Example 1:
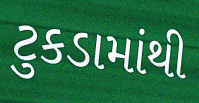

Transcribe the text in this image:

ટુકડામાંથી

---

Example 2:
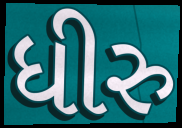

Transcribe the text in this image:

ધીરુ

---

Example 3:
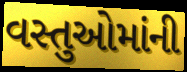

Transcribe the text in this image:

વસ્તુઓમાંની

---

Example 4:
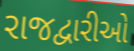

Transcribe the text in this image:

રાજદ્વારીઓ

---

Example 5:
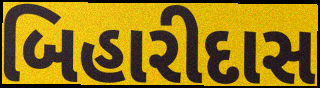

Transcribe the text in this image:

બિહારીદાસ